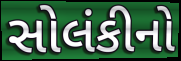
સોલંકીનો